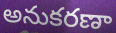
అనుకరణా